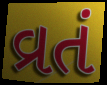
વ્રતં